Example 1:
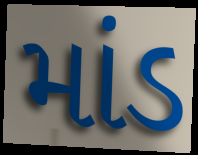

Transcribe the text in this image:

માંડ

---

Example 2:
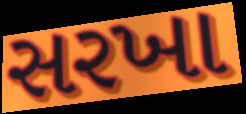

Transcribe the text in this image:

સરખા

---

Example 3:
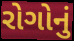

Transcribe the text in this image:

રોગોનું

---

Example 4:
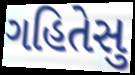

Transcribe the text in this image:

ગહિતેસુ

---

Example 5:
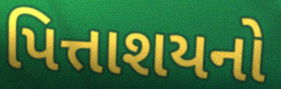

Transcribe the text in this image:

પિત્તાશયનો